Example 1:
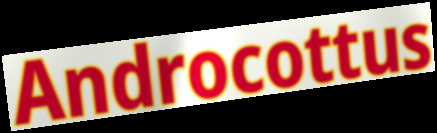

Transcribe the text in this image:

Androcottus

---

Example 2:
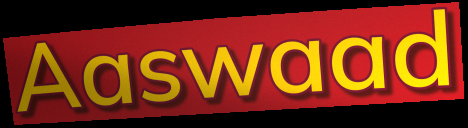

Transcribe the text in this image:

Aaswaad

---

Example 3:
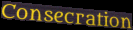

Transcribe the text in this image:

Consecration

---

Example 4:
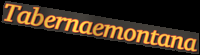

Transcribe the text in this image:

Tabernaemontana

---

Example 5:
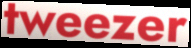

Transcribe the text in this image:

tweezer